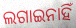
ଲଗାଇନାହିଁ